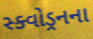
સ્ક્વોડ્રનના